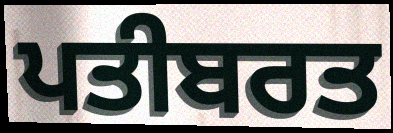
ਪਤੀਬਰਤ